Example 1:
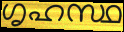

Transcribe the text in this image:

ഗൃഹസ്ഥ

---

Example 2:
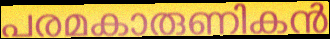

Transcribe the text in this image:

പരമകാരുണികൻ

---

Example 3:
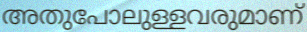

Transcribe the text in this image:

അതുപോലുള്ളവരുമാണ്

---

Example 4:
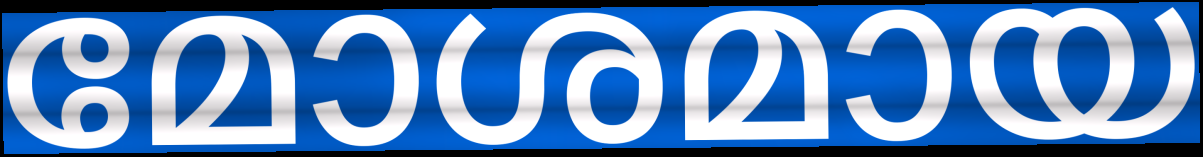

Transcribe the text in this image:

മോശമായ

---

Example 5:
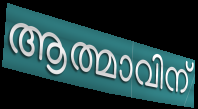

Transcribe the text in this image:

ആത്മാവിന്